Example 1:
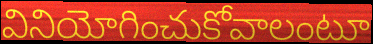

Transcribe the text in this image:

వినియోగించుకోవాలంటూ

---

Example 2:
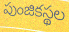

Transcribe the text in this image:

పుంజికస్థల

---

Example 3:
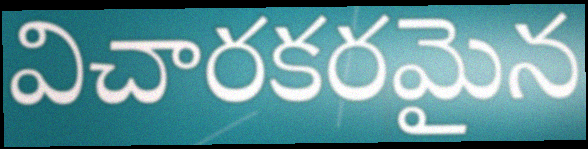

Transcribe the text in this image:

విచారకరమైన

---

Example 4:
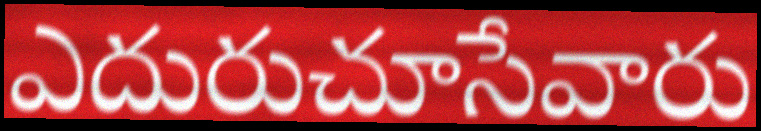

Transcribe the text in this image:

ఎదురుచూసేవారు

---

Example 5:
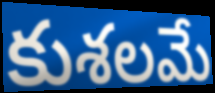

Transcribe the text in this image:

కుశలమే